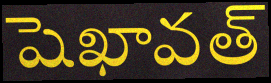
షెఖావత్